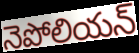
నెపోలియన్